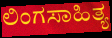
ಲಿಂಗಸಾಹಿತ್ಯ